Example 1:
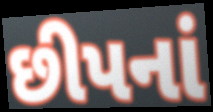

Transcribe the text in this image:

છીપનાં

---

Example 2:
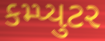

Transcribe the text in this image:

કમ્પ્યુટર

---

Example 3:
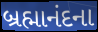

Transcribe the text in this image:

બ્રહ્માનંદના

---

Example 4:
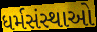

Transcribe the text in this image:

ધર્મસંસ્થાઓ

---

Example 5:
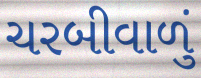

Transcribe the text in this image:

ચરબીવાળું